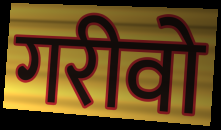
गरीवो